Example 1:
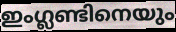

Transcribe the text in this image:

ഇംഗ്ലണ്ടിനെയും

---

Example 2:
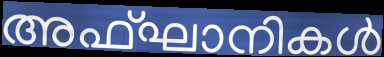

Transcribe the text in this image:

അഫ്ഘാനികൾ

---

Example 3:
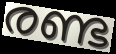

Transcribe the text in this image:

രണ്ട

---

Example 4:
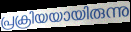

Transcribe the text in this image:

പ്രക്രിയയായിരുന്നു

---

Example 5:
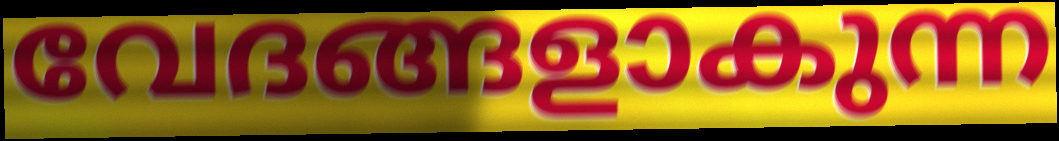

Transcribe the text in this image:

വേദങ്ങളാകുന്ന